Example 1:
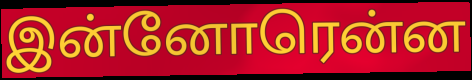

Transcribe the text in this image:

இன்னோரென்ன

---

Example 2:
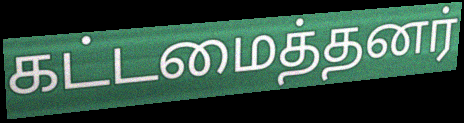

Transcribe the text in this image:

கட்டமைத்தனர்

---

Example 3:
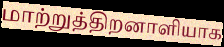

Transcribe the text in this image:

மாற்றுத்திறனாளியாக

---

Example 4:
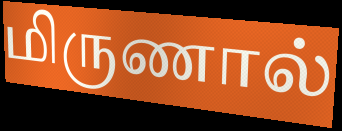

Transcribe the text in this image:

மிருணால்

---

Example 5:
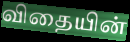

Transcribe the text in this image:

விதையின்